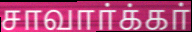
சாவார்க்கர்